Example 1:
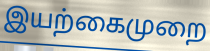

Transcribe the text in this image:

இயற்கைமுறை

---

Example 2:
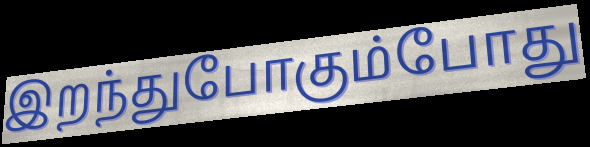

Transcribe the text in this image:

இறந்துபோகும்போது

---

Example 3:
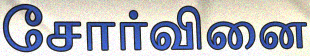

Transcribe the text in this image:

சோர்வினை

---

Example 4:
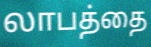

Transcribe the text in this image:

லாபத்தை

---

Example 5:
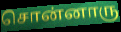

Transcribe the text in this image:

சொன்னாரு